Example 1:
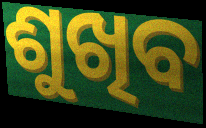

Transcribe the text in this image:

ଶୁଖିବ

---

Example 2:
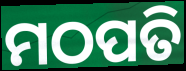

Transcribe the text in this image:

ମଠପତି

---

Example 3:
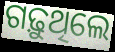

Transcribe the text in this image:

ଗଢ଼ୁଥିଲେ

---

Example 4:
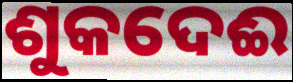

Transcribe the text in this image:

ଶୁକଦେଈ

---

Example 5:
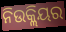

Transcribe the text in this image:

ନିଉକ୍ଲିୟର